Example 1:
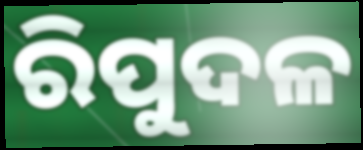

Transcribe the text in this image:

ରିପୁଦଳ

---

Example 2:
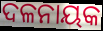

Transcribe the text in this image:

ଦଳନାୟକ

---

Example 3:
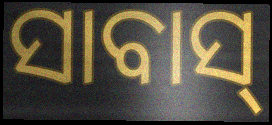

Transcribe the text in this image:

ସାବାସ୍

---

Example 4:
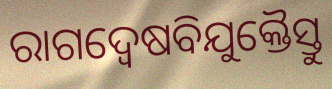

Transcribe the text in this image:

ରାଗଦ୍ୱେଷବିଯୁକ୍ତୈସ୍ତୁ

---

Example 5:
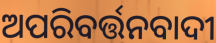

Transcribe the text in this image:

ଅପରିବର୍ତ୍ତନବାଦୀ